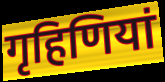
गृहिणियां